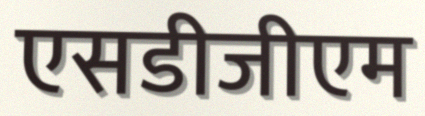
एसडीजीएम